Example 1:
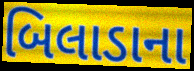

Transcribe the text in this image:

બિલાડાના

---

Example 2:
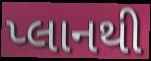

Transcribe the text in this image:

પ્લાનથી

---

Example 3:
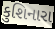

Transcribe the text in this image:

કુશિનારા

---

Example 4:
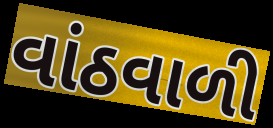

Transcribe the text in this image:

વાંઠવાળી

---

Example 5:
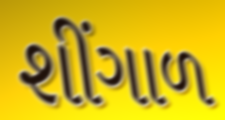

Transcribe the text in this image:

શીંગાળ